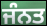
ਜੰਨਤ